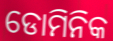
ଡୋମିନିକ